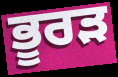
ਭੂਰੜ